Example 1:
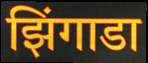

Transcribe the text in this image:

झिंगाडा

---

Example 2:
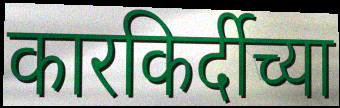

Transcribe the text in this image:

कारकिर्दीच्या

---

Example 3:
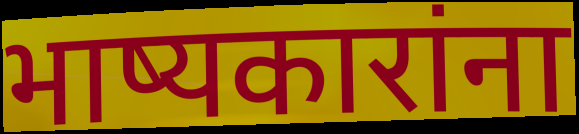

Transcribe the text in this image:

भाष्यकारांना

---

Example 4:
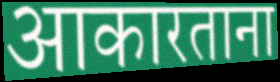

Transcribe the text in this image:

आकारताना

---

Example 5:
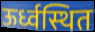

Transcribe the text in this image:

ऊर्ध्वस्थित